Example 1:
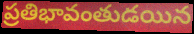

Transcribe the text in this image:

ప్రతిభావంతుడయిన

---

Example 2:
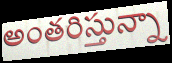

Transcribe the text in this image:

అంతరిస్తున్నా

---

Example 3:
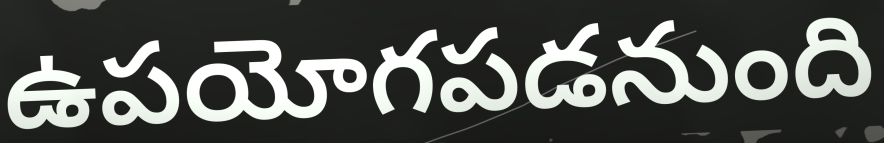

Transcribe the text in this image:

ఉపయోగపడనుంది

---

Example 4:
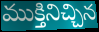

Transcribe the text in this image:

ముక్తినిచ్చిన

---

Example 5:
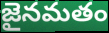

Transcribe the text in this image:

జైనమతం